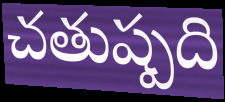
చతుష్పది